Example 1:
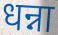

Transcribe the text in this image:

धन्ना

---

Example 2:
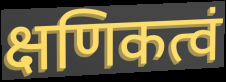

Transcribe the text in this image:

क्षणिकत्वं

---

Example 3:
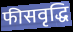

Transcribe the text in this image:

फीसवृद्धि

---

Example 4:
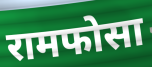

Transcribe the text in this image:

रामफोसा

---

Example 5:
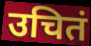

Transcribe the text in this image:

उचितं